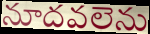
నూదవలెను